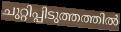
ചുറ്റിപ്പിടുത്തത്തിൽ